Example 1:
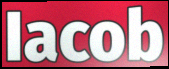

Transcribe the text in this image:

Iacob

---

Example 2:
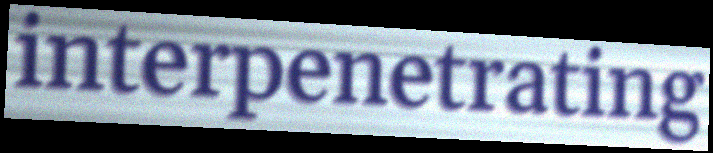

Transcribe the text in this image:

interpenetrating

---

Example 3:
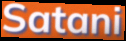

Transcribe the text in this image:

Satani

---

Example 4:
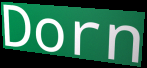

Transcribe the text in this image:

Dorn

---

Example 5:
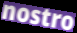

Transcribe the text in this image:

nostro